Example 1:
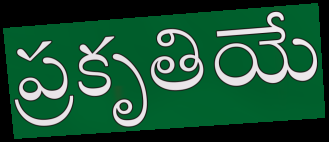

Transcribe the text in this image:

ప్రకృతియే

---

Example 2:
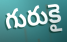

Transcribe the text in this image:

గురుకై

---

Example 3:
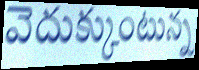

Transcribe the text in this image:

వెదుక్కుంటున్న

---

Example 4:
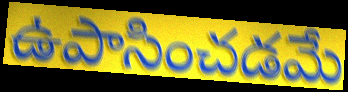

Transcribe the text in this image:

ఉపాసించడమే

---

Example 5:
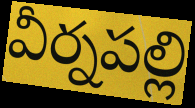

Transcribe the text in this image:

వీర్నపల్లి